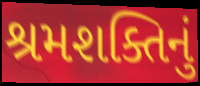
શ્રમશક્તિનું